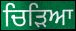
ਚਿੜਿਆ